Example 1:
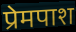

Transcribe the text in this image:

प्रेमपाश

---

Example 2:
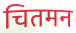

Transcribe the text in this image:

चितमन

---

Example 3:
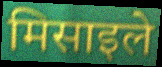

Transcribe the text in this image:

मिसाइले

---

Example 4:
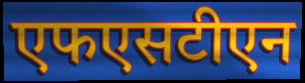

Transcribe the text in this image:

एफएसटीएन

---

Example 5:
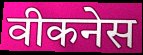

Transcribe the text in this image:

वीकनेस